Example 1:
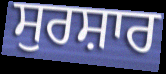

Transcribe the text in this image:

ਸੁਰਸ਼ਾਰ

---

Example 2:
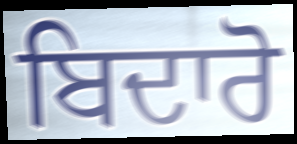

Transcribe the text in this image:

ਬਿਦਾਰੋ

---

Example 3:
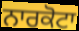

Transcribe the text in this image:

ਨਾਰਕੋਟਾ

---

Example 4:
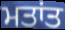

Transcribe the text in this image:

ਮਤਾਂਤ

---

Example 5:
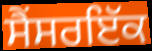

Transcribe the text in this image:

ਸੈਂਸਰਇੱਕ